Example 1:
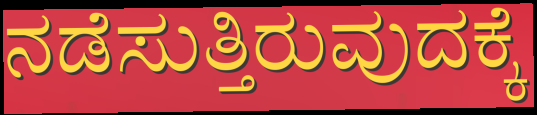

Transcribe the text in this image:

ನಡೆಸುತ್ತಿರುವುದಕ್ಕೆ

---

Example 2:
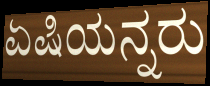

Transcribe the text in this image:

ಏಷಿಯನ್ನರು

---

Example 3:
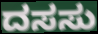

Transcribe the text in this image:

ದಸಸು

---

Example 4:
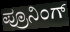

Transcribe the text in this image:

ಪ್ರೂನಿಂಗ್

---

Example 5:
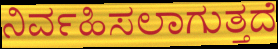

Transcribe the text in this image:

ನಿರ್ವಹಿಸಲಾಗುತ್ತದೆ